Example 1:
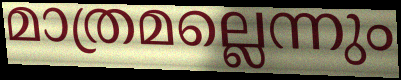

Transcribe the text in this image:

മാത്രമല്ലെന്നും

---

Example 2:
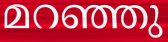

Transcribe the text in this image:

മറഞ്ഞു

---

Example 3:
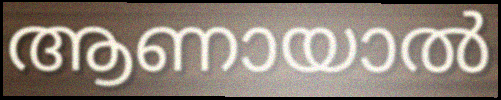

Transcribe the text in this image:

ആണായാൽ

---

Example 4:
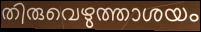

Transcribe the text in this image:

തിരുവെഴുത്താശയം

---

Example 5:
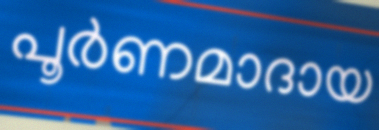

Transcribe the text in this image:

പൂർണമാദായ